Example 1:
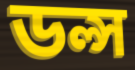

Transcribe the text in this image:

ডল্স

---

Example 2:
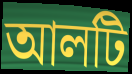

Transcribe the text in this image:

আলটি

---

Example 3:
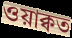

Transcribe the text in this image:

ওয়াক্বত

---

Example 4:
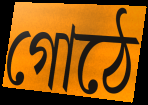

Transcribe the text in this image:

গোঠে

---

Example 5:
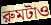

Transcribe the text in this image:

রুমটাও